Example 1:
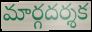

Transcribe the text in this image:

మార్గదర్శక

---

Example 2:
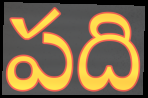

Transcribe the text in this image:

పది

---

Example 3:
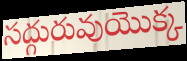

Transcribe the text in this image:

సద్గురువుయొక్క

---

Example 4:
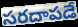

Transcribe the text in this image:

సరదాపడే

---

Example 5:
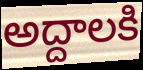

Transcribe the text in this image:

అద్దాలకి